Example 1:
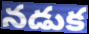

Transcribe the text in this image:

నడుక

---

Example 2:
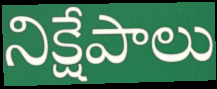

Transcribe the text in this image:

నిక్షేపాలు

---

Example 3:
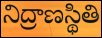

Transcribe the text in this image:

నిద్రాణస్థితి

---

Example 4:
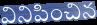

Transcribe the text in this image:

వినిపించిన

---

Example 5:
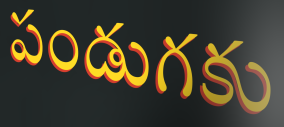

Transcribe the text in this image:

పండుగకు